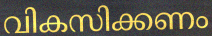
വികസിക്കണം